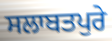
ਸਲਾਬਤਪੁਰੇ